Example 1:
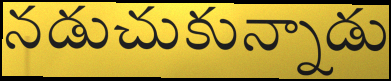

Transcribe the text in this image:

నడుచుకున్నాడు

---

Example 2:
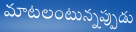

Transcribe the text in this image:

మాటలంటున్నప్పుడు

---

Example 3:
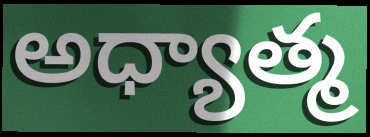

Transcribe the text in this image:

అధ్యాత్మ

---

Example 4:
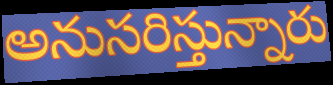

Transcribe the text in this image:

అనుసరిస్తున్నారు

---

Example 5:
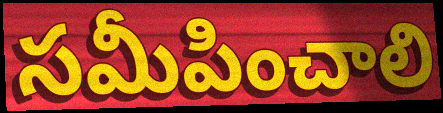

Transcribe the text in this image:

సమీపించాలి